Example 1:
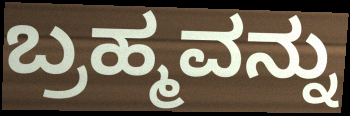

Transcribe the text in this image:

ಬ್ರಹ್ಮವನ್ನು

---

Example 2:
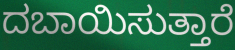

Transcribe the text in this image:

ದಬಾಯಿಸುತ್ತಾರೆ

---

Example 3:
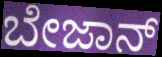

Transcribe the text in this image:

ಬೇಜಾನ್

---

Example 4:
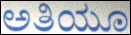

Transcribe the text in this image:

ಅತಿಯೂ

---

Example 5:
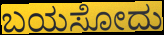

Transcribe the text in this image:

ಬಯಸೋದು